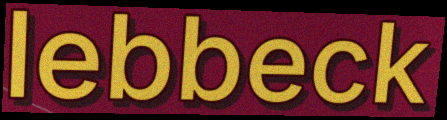
lebbeck